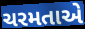
ચરમતાએ